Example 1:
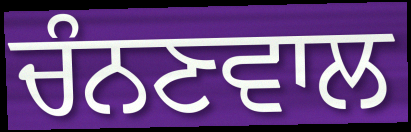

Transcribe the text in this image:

ਚੰਨਣਵਾਲ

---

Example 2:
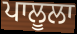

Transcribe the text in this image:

ਪਾਲੂਲਾ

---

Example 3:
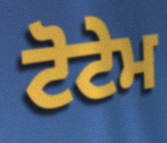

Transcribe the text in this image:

ਟੋਟੇਮ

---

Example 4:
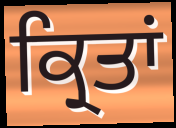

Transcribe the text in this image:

ਕ੍ਰਿਤਾਂ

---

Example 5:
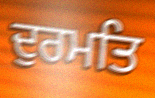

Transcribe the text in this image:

ਦੁਰਮਤਿ